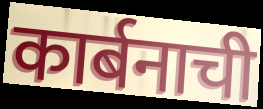
कार्बनाची